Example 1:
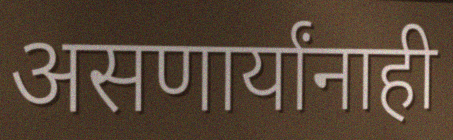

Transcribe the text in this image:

असणार्यांनाही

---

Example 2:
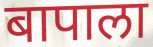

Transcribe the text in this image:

बापाला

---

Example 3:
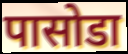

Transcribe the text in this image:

पासोडा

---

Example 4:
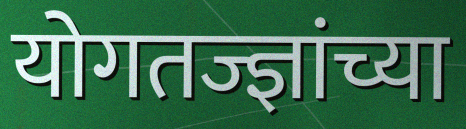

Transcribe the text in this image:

योगतज्ज्ञांच्या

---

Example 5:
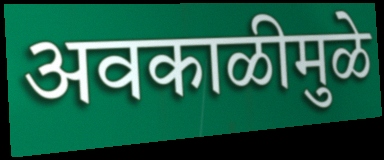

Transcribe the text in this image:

अवकाळीमुळे